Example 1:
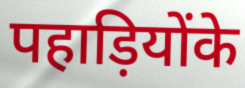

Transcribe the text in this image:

पहाड़ियोंके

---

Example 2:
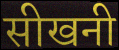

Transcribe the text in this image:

सीखनी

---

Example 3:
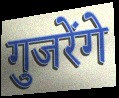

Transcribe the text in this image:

गुजरेंगे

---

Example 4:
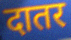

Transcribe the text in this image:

दातर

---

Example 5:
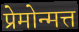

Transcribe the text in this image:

प्रेमोन्मत्त